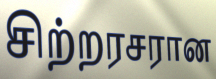
சிற்றரசரான